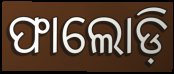
ଫାଲୋଡ଼ି